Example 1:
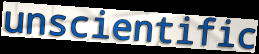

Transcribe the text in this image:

unscientific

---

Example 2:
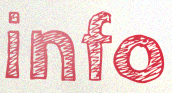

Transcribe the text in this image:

info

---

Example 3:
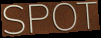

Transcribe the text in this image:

SPOT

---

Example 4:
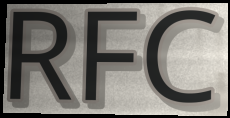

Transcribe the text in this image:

RFC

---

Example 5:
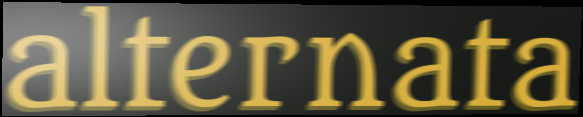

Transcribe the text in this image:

alternata